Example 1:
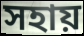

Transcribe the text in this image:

সহায়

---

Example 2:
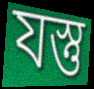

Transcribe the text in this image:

যস্তু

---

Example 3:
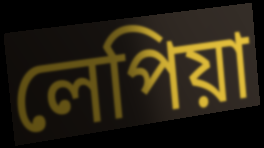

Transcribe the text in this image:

লেপিয়া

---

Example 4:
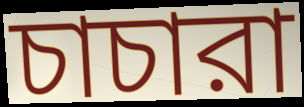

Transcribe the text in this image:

চাচারা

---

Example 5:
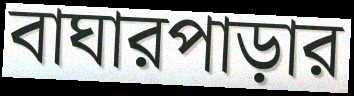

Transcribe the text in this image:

বাঘারপাড়ার